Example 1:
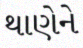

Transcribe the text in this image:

થાણેને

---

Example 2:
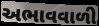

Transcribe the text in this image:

અભાવવાળી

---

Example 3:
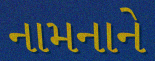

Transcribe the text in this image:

નામનાને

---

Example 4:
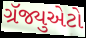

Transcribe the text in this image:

ગ્રૅજ્યુએટો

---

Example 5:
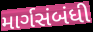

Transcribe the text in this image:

માર્ગસંબંધી